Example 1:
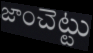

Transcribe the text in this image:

జాంచెట్టు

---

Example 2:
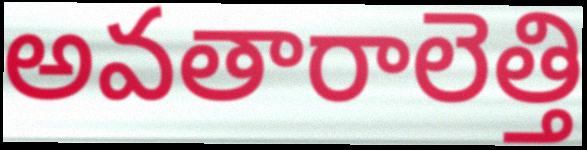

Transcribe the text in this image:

అవతారాలెత్తి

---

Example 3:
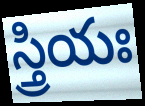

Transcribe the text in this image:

స్త్రియః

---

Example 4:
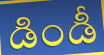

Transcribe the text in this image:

డిండీ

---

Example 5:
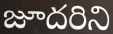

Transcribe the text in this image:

జూదరిని